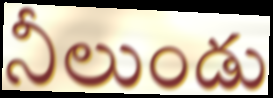
నీలుండు